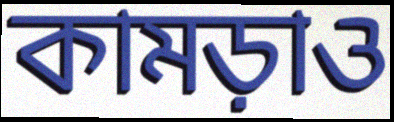
কামড়াও